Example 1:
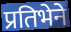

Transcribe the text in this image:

प्रतिभेने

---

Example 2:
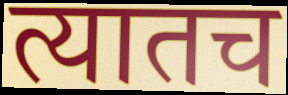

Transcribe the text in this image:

त्यातच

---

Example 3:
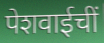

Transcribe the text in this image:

पेशवाईचीं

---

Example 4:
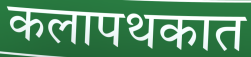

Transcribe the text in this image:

कलापथकात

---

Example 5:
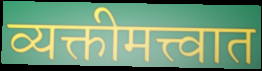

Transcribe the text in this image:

व्यक्तीमत्त्वात